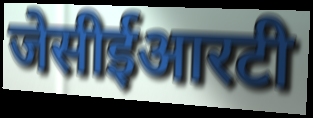
जेसीईआरटी